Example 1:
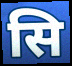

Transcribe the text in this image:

सि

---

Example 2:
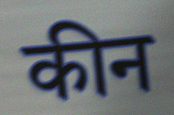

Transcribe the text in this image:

कीन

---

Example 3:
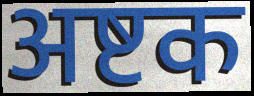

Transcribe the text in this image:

अष्टक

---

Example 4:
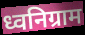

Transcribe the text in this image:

ध्वनिग्राम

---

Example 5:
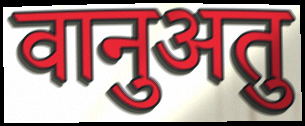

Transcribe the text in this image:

वानुअतु